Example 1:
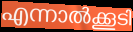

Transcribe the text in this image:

എന്നാൽക്കൂടി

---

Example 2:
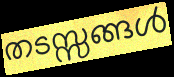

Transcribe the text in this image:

തടസ്സങ്ങൾ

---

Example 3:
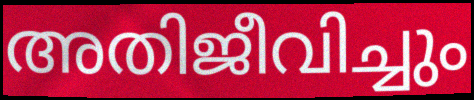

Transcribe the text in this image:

അതിജീവിച്ചും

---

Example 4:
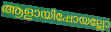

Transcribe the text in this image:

ആളായിപ്പോയല്ലോ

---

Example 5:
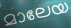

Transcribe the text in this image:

മാലേയ